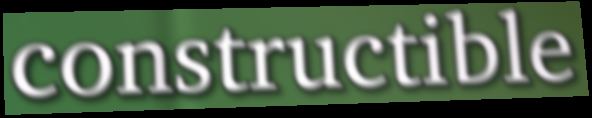
constructible